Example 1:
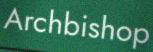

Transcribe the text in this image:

Archbishop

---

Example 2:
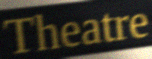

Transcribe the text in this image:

Theatre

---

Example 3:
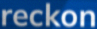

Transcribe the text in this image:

reckon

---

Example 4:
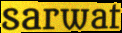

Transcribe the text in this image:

sarwat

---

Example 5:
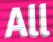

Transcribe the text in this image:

All